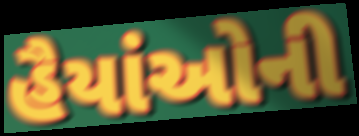
હૈયાંઓની